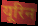
यूरिन